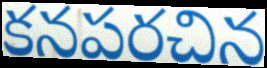
కనపరచిన